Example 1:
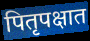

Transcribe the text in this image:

पितृपक्षात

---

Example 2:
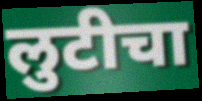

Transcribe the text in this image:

लुटीचा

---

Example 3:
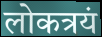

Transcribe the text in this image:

लोकत्रयं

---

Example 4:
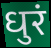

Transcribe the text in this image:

धुरं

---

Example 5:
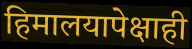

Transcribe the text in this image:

हिमालयापेक्षाही